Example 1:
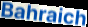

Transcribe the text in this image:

Bahraich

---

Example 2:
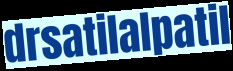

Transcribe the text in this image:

drsatilalpatil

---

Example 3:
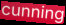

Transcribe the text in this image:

cunning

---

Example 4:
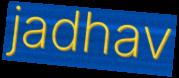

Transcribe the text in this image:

jadhav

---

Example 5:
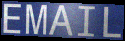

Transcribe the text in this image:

EMAIL